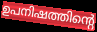
ഉപനിഷത്തിന്റെ